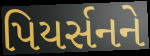
પિયર્સનને